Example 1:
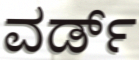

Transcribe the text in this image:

ವರ್ಡ್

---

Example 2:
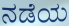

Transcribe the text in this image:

ನಡೆಯ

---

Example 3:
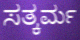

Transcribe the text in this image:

ಸತ್ಕರ್ಮ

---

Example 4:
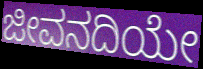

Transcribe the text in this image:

ಜೀವನದಿಯೇ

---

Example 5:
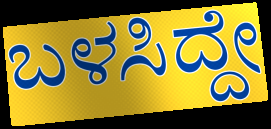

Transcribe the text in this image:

ಬಳಸಿದ್ದೇ